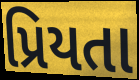
પ્રિયતા